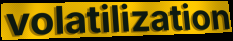
volatilization